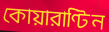
কোয়ারাণ্টিন